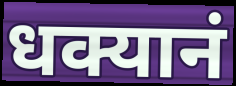
धक्यानं